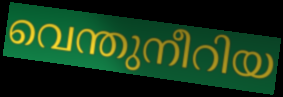
വെന്തുനീറിയ